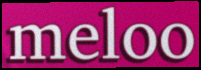
meloo